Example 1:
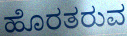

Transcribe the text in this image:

ಹೊರತರುವ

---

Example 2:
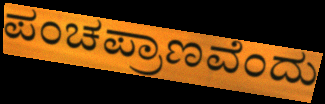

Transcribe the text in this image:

ಪಂಚಪ್ರಾಣವೆಂದು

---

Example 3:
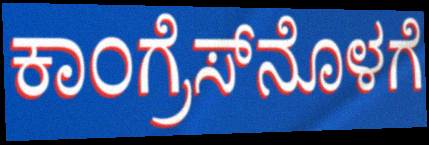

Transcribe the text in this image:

ಕಾಂಗ್ರೆಸ್‌ನೊಳಗೆ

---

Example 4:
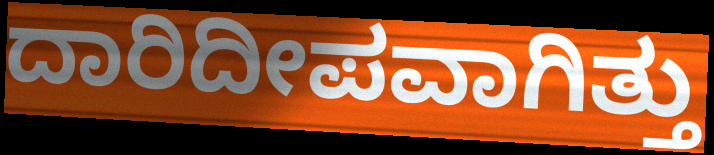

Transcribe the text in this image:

ದಾರಿದೀಪವಾಗಿತ್ತು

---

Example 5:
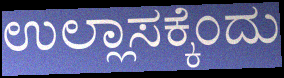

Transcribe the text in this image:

ಉಲ್ಲಾಸಕ್ಕೆಂದು